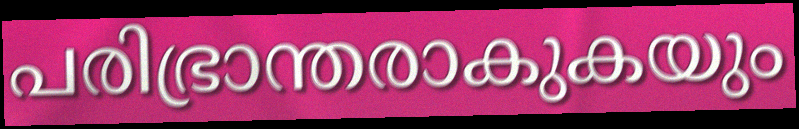
പരിഭ്രാന്തരാകുകയും